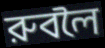
ৰুবলৈ